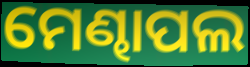
ମେଣ୍ଢାପଲ